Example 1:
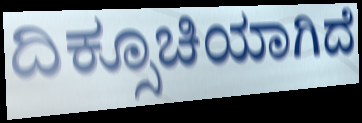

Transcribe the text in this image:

ದಿಕ್ಸೂಚಿಯಾಗಿದೆ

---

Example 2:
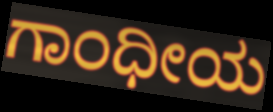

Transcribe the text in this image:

ಗಾಂಧೀಯ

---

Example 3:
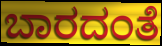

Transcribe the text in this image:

ಬಾರದಂತೆ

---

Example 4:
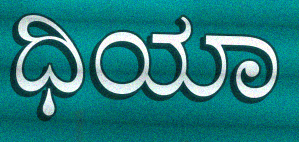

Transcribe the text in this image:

ಧಿಯಾ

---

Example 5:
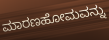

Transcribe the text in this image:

ಮಾರಣಹೋಮವನ್ನು